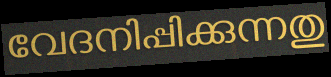
വേദനിപ്പിക്കുന്നതു